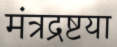
मंत्रद्रष्टया